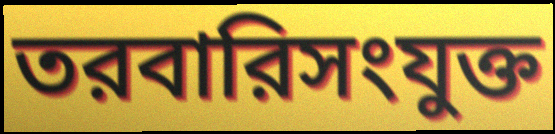
তরবারিসংযুক্ত